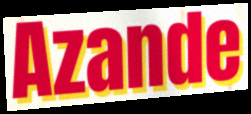
Azande